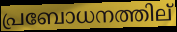
പ്രബോധനത്തില്